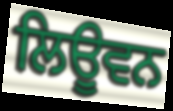
ਲਿਊਵਨ